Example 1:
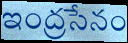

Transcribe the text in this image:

ఇంద్రసేనం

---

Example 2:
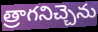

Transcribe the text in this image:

త్రాగనిచ్చెను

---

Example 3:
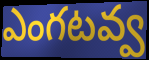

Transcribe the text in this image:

ఎంగటవ్వ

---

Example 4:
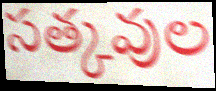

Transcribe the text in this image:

సత్కవుల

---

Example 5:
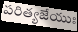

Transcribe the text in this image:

పరిత్యజేయుః